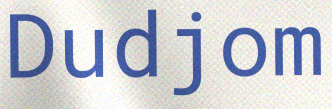
Dudjom